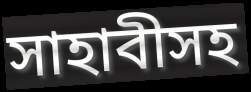
সাহাবীসহ